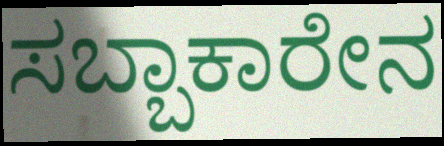
ಸಬ್ಬಾಕಾರೇನ